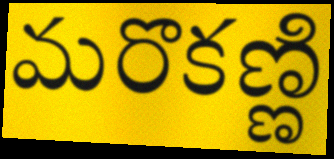
మరొకణ్ణి